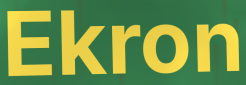
Ekron